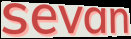
sevan